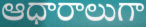
ఆధారాలుగా